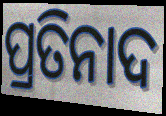
ପ୍ରତିନାଦ